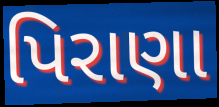
પિરાણા